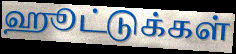
ஹூட்டுக்கள்